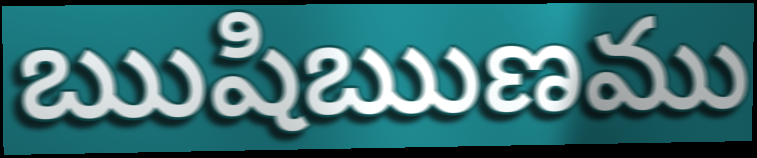
ఋషిఋణము